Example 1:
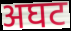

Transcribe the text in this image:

अघट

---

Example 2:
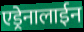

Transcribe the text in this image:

एड्रेनालाईन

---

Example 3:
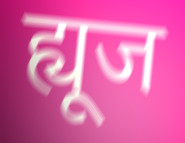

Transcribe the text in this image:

ह्यूज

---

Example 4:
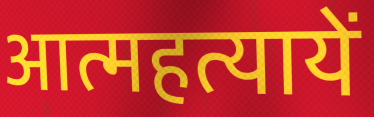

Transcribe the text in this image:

आत्महत्यायें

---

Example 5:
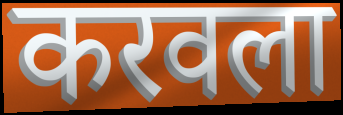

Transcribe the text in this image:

करवला